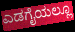
ಎಡಗೈಯಲ್ಲೂ